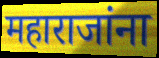
महाराजांना